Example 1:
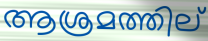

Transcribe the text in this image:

ആശ്രമത്തില്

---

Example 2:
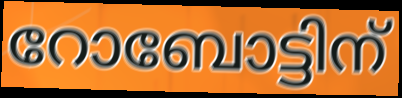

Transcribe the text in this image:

റോബോട്ടിന്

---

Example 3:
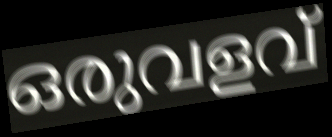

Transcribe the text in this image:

ഒരുവളവ്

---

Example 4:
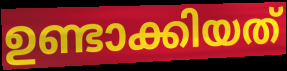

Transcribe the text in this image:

ഉണ്ടാക്കിയത്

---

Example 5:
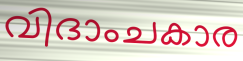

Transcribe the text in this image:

വിദാംചകാര